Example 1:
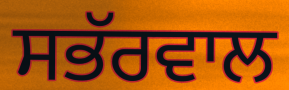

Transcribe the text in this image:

ਸਭੱਰਵਾਲ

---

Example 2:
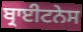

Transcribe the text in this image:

ਬ੍ਰਾਈਟਨੇਸ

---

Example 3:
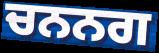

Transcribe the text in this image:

ਚਨਨਗ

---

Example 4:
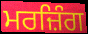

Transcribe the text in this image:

ਮਰਜ਼ਿੰਗ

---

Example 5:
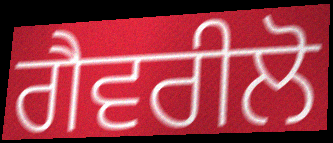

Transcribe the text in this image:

ਗੈਵਰੀਲੋ